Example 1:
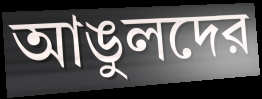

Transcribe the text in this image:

আঙুলদের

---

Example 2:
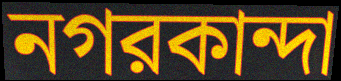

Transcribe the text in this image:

নগরকান্দা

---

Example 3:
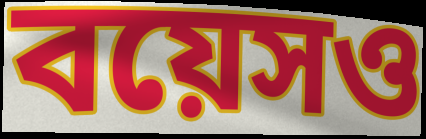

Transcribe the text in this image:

বয়েসও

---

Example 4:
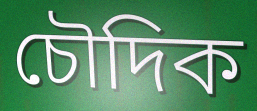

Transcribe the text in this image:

চৌদিক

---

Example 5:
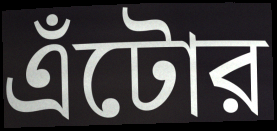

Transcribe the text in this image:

এঁটোর